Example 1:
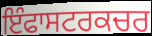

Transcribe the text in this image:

ਇੰਫਾਸਟਰਕਚਰ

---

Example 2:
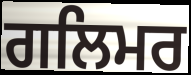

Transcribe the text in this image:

ਗਲਿਮਰ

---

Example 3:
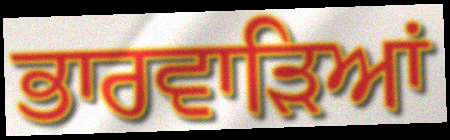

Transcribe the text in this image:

ਭਾਰਵਾੜਿਆਂ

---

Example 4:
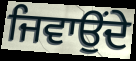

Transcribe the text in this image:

ਜਿਵਾਉਂਦੇ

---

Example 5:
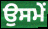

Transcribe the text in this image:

ਉਸਮੇਂ